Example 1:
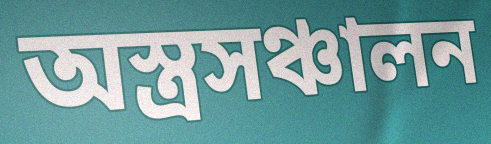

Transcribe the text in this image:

অস্ত্রসঞ্চালন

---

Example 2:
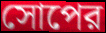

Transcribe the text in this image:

সোপের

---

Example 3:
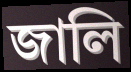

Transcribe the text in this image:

জালি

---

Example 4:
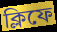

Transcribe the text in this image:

ক্লিফে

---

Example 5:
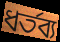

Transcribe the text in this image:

ধর্তব্য